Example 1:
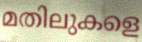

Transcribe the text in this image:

മതിലുകളെ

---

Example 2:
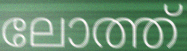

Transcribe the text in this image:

ലോത്ത്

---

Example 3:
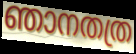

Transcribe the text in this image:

ഞാനതത്ര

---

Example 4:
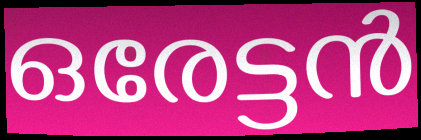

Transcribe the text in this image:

ഒരേട്ടൻ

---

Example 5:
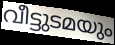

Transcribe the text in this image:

വീട്ടുടമയും